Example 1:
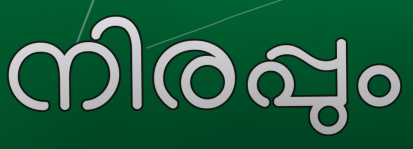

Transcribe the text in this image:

നിരപ്പും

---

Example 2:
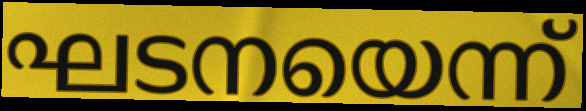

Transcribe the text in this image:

ഘടനയെന്ന്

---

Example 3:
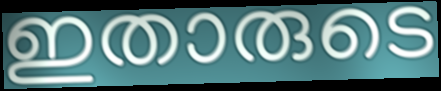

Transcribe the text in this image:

ഇതാരുടെ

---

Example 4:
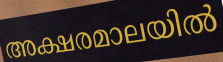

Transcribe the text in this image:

അക്ഷരമാലയിൽ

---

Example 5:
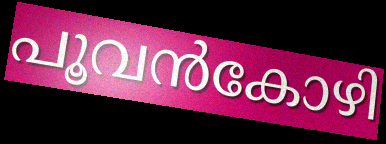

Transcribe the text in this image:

പൂവൻകോഴി